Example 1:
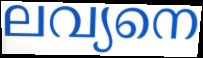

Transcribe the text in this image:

ലവ്യനെ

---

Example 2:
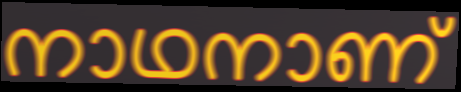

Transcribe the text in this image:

നാഥനാണ്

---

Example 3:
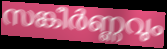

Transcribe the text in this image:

സങ്കീർണ്ണവും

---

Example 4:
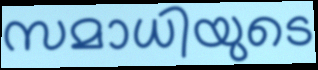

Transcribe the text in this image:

സമാധിയുടെ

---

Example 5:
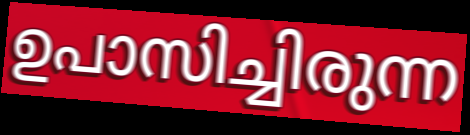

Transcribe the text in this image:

ഉപാസിച്ചിരുന്ന